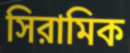
সিরামিক